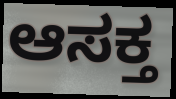
ಆಸಕ್ತ